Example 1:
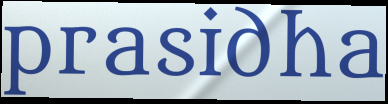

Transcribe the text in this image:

prasidha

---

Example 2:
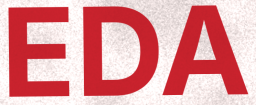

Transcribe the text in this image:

EDA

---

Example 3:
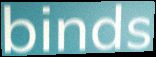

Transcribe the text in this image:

binds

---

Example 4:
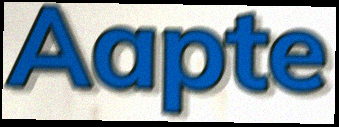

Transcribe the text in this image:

Aapte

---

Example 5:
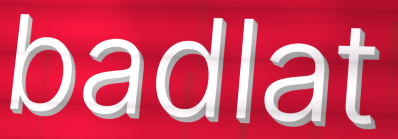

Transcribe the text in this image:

badlat